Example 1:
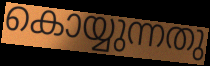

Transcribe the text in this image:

കൊയ്യുന്നതു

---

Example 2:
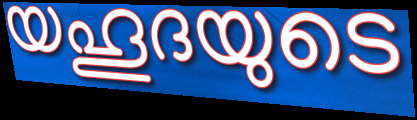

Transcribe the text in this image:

യഹൂദയുടെ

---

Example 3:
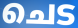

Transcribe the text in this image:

ചെട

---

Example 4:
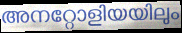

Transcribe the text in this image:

അനറ്റോളിയയിലും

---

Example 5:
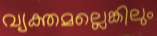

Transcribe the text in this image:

വ്യക്തമല്ലെങ്കിലും